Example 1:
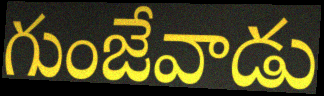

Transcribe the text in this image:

గుంజేవాడు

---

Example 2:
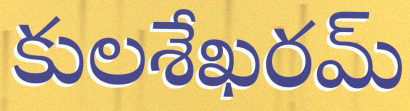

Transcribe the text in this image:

కులశేఖరమ్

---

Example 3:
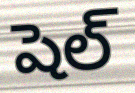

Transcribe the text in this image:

షెల్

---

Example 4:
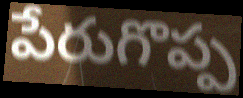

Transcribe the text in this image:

పేరుగొప్ప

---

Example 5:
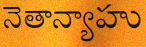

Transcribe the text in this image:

నెతాన్యాహు